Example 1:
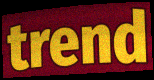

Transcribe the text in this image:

trend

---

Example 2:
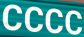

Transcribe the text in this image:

CCCC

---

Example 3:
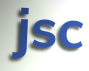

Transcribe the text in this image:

jsc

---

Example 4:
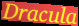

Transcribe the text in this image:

Dracula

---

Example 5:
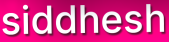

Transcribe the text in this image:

siddhesh